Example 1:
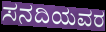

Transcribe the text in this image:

ಸನದಿಯವರ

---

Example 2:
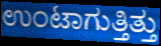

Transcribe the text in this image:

ಉಂಟಾಗುತ್ತಿತ್ತು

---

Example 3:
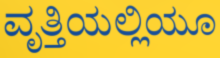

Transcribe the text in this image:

ವೃತ್ತಿಯಲ್ಲಿಯೂ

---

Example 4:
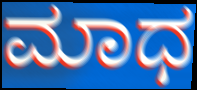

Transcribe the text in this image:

ಮಾಧ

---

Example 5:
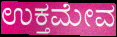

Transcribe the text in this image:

ಉಕ್ತಮೇವ